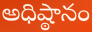
అధిష్ఠానం